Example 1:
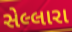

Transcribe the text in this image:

સેલ્લારા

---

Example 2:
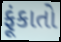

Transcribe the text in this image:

ફૂંકાતો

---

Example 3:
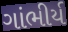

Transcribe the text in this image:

ગાંભીર્ય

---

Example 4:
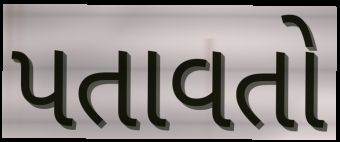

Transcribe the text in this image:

પતાવતો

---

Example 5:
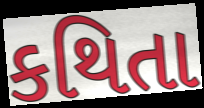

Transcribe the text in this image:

કથિતા